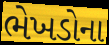
ભેખડોના